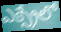
ఎక్స్రేలో